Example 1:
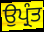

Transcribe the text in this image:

ਉਪ੍ਰ੍ਰੰਤ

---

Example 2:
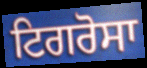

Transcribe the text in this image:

ਟਿਗਰੋਸਾ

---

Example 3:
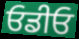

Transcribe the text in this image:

ਓਡੀਓ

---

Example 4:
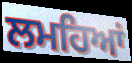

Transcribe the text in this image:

ਲਮਹਿਆਂ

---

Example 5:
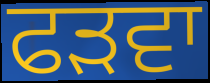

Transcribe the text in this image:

ਫੜਵਾ